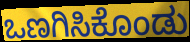
ಒಣಗಿಸಿಕೊಂಡು